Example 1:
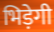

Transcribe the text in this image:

भिड़ेगी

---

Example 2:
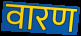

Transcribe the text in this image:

वारण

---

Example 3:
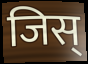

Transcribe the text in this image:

जिस्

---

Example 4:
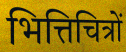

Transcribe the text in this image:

भित्तिचित्रों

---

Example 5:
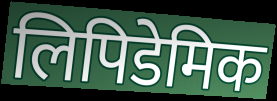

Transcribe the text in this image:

लिपिडेमिक